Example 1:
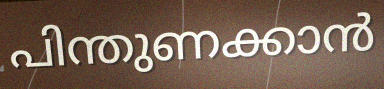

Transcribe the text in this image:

പിന്തുണക്കാൻ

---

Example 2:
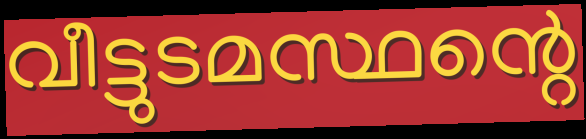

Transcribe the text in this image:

വീട്ടുടമസ്ഥന്റെ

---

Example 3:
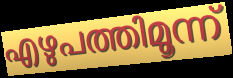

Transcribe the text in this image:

എഴുപത്തിമൂന്ന്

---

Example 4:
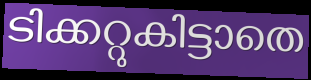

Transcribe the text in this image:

ടിക്കറ്റുകിട്ടാതെ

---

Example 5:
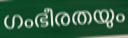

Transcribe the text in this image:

ഗംഭീരതയും